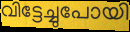
വിട്ടേച്ചുപോയി